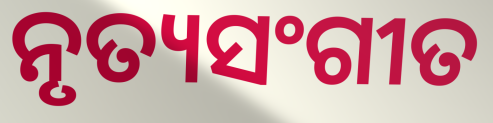
ନୃତ୍ୟସଂଗୀତ